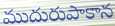
ముదురుపాకాన